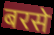
बरसे